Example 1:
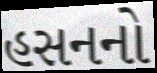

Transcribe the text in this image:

હસનનો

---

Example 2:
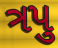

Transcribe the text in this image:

ત્રપુ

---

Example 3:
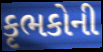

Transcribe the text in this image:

કૃભકોની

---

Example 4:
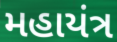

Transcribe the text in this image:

મહાયંત્ર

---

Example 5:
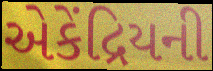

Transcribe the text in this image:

એકેંદ્રિયની